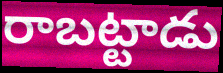
రాబట్టాడు